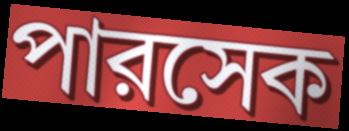
পারসেক